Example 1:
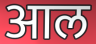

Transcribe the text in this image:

आल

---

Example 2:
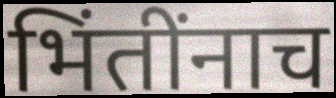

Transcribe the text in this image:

भिंतींनाच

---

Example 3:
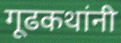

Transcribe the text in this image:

गूढकथांनी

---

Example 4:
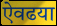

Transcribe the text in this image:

ऐवढया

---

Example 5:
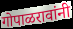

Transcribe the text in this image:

गोपाळरावांनी